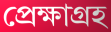
প্রেক্ষাগ্রহ